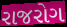
રાજરોગ